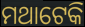
ମଥାଟେକି